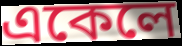
একেলে